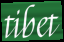
tibet